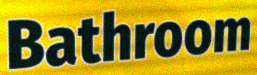
Bathroom